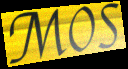
MOS